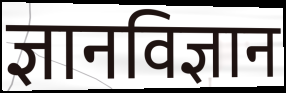
ज्ञानविज्ञान